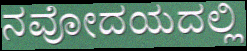
ನವೋದಯದಲ್ಲಿ